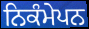
ਨਿਕੰਮੇਪਨ